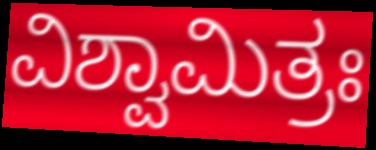
ವಿಶ್ವಾಮಿತ್ರಃ